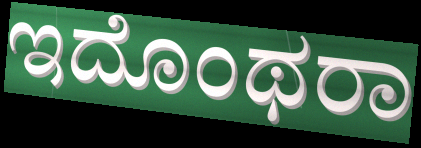
ಇದೊಂಥರಾ